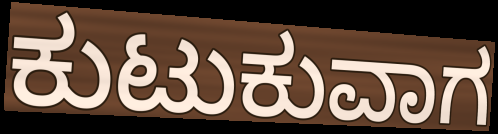
ಕುಟುಕುವಾಗ